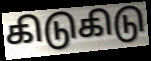
கிடுகிடு